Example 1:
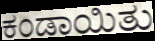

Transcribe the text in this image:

ಕಂಡಾಯಿತು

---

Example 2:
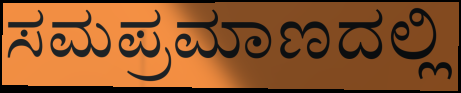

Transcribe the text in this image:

ಸಮಪ್ರಮಾಣದಲ್ಲಿ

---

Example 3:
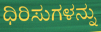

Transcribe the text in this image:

ಧಿರಿಸುಗಳನ್ನು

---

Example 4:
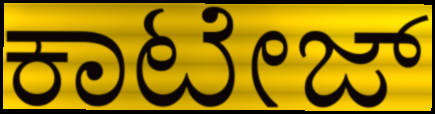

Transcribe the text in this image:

ಕಾಟೇಜ್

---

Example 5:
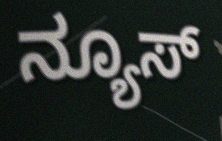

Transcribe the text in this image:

ನ್ಯೂಸ್